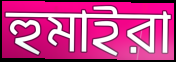
হুমাইরা